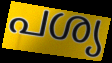
പശ്യ